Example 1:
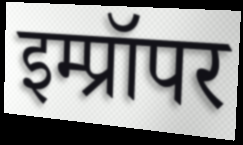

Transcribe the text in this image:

इम्प्रॉपर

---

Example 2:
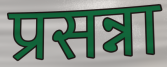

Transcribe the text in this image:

प्रसन्ना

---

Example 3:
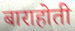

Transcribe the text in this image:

बाराहोती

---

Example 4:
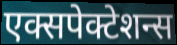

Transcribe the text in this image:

एक्सपेक्टेशन्स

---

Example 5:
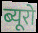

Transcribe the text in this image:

ब्‍यूरो